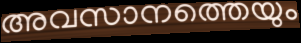
അവസാനത്തെയും